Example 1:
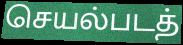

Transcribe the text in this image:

செயல்படத்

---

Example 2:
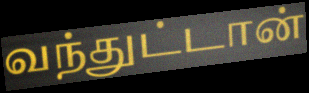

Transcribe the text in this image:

வந்துட்டான்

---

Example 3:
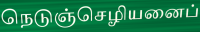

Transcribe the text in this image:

நெடுஞ்செழியனைப்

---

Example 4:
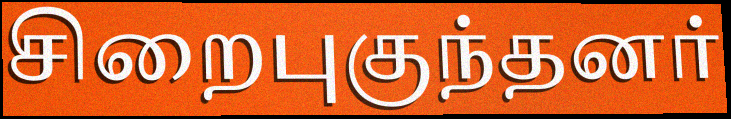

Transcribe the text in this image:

சிறைபுகுந்தனர்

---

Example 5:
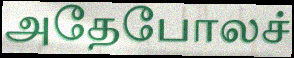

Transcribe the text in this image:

அதேபோலச்